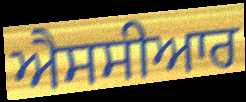
ਐਸਸੀਆਰ